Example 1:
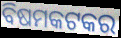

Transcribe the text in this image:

ବିଷମକଟକର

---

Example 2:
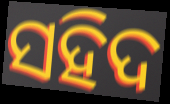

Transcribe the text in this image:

ସହିଦ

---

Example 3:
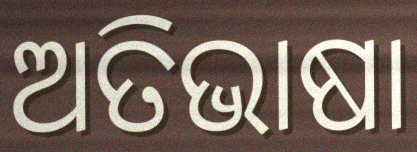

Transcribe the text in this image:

ଅତିଭାଷା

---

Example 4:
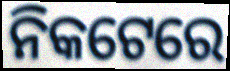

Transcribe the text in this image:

ନିକଟେରେ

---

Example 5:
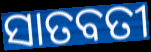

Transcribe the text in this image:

ସାତବତୀ